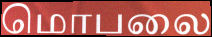
மொபலை